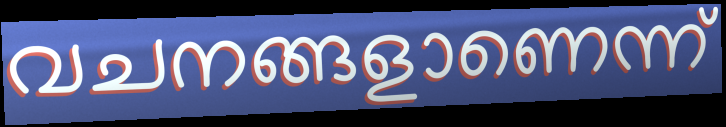
വചനങ്ങളാണെന്ന്